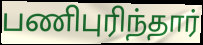
பணிபுரிந்தார்